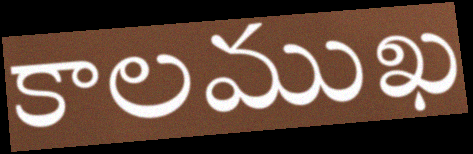
కాలముఖ